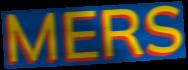
MERS